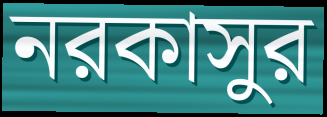
নরকাসুর